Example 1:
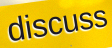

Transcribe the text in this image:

discuss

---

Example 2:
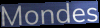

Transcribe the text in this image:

Mondes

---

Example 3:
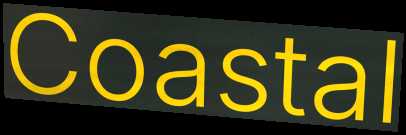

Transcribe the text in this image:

Coastal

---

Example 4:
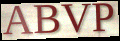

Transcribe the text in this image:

ABVP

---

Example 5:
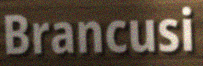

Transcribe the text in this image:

Brancusi